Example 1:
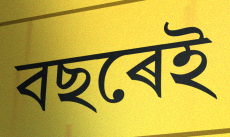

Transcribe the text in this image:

বছৰেই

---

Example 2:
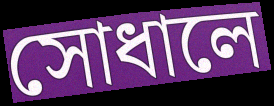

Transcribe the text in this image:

সোধালে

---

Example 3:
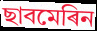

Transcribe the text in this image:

ছাবমেৰিন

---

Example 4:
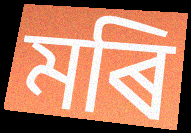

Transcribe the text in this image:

মৰি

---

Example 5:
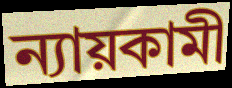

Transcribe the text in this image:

ন্যায়কামী